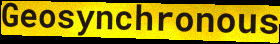
Geosynchronous